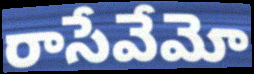
రాసేవేమో